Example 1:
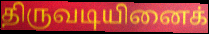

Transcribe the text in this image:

திருவடியினைக்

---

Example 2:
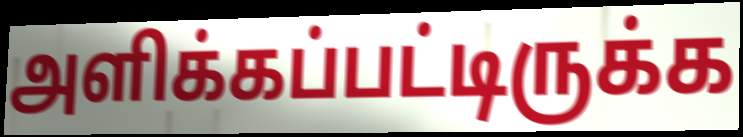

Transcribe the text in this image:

அளிக்கப்பட்டிருக்க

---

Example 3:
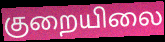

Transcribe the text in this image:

குறையிலை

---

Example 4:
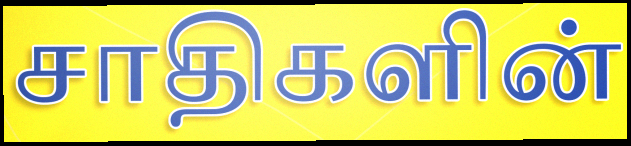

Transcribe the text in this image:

சாதிகளின்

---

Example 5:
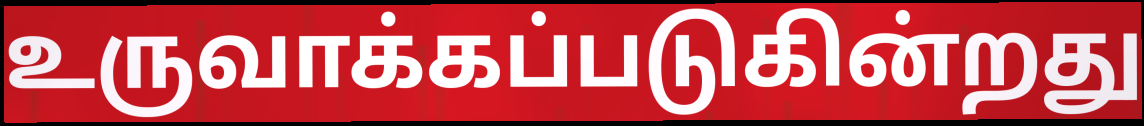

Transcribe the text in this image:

உருவாக்கப்படுகின்றது